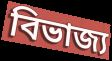
বিভাজ্য